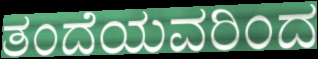
ತಂದೆಯವರಿಂದ